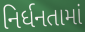
નિર્ધનતામાં